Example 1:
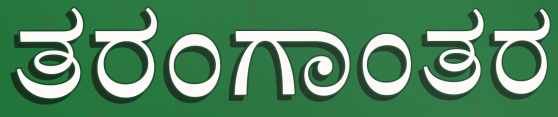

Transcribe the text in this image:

ತರಂಗಾಂತರ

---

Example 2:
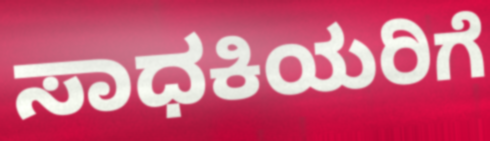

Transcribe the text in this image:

ಸಾಧಕಿಯರಿಗೆ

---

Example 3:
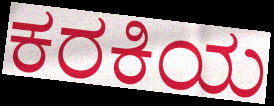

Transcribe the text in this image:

ಕರಕಿಯ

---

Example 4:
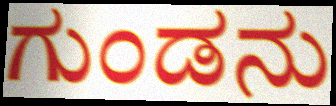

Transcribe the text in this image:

ಗುಂಡನು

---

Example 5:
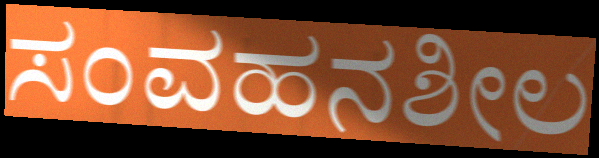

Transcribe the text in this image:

ಸಂವಹನಶೀಲ